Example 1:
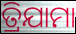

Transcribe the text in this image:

ତ୍ରିଯାମା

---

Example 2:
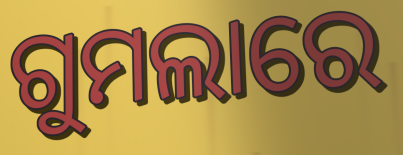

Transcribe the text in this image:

ଗୁମଲାରେ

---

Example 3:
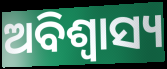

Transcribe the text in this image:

ଅବିଶ୍ଵାସ୍ୟ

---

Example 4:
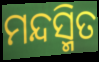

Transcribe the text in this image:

ମନ୍ଦସ୍ମିତ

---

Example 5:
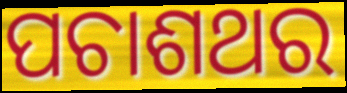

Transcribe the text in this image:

ପଚାଶଥର